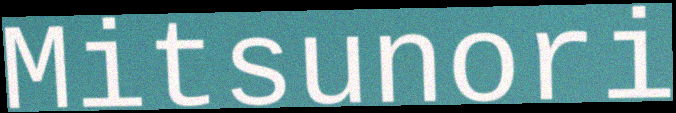
Mitsunori